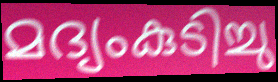
മദ്യംകുടിച്ചു